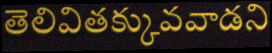
తెలివితక్కువవాడని